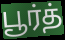
பூர்த்